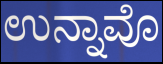
ಉನ್ನಾವೊ